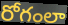
రోగంలా